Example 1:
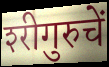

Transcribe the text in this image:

श्रीगुरुचें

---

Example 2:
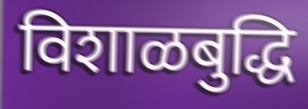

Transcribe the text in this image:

विशाळबुद्धि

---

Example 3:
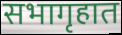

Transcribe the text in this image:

सभागृहात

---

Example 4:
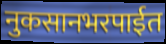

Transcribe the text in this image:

नुकसानभरपाईत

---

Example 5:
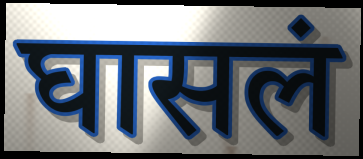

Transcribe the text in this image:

घासलं